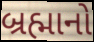
બ્રહ્માનો